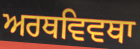
ਅਰਥਵਿਵਥਾ